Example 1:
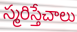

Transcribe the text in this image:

స్మరిస్తేచాలు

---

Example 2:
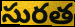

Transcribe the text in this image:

సురత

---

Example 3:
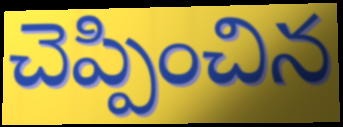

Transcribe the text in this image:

చెప్పించిన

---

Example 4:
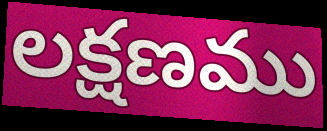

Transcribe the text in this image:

లక్షణము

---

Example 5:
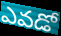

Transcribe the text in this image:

ఎవడో